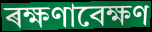
ৰক্ষণাবেক্ষণ